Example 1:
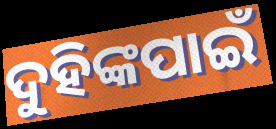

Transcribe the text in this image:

ଦୁହିଙ୍କପାଇଁ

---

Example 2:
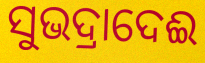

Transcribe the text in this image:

ସୁଭଦ୍ରାଦେଈ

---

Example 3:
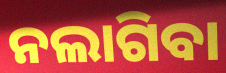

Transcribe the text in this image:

ନଲାଗିବା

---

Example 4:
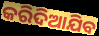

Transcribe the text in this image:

କରିଦିଆଯିବ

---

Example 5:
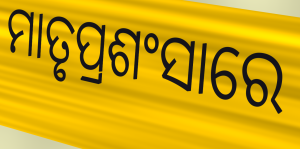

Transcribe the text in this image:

ମାତୃପ୍ରଶଂସାରେ